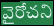
వైరోచని